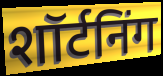
शॉर्टनिंग